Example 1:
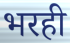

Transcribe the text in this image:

भरही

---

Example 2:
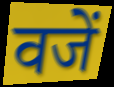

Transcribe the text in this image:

वजें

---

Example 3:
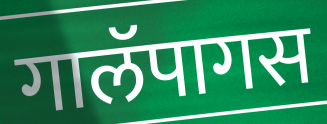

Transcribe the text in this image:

गालॅपागस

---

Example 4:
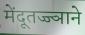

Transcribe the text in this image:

मेंदूतज्ज्ञाने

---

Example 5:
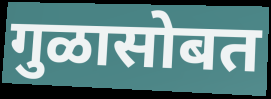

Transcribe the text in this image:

गुळासोबत